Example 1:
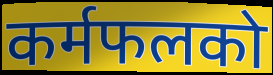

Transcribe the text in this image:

कर्मफलको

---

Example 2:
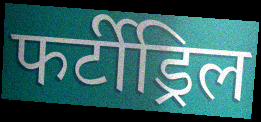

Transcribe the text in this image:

फर्टीड्रिल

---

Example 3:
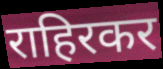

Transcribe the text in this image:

राहिरकर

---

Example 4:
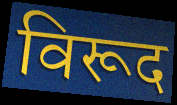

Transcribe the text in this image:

विरूद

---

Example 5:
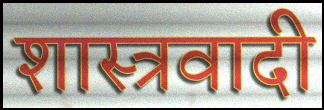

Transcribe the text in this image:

शास्त्रवादी